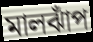
মালঝাঁপ